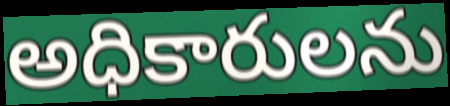
అధికారులను